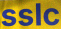
sslc